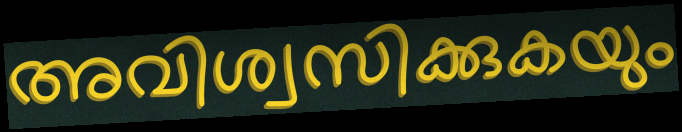
അവിശ്വസിക്കുകയും